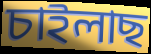
চাইলাছ